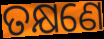
ତକ୍ଷଣେ